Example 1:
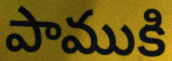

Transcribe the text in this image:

పాముకి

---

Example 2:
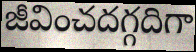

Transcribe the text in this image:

జీవించదగ్గదిగా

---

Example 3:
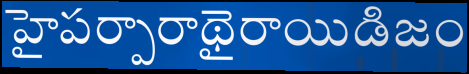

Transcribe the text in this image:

హైపర్పారాథైరాయిడిజం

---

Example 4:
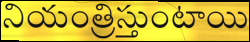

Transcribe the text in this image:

నియంత్రిస్తుంటాయి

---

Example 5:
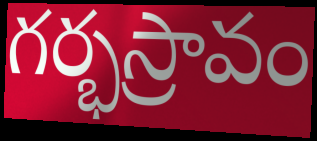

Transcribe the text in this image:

గర్భస్రావం